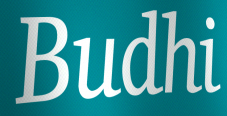
Budhi